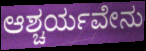
ಆಶ್ಚರ್ಯವೇನು